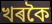
খৰকৈ